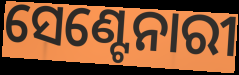
ସେଣ୍ଟେନାରୀ